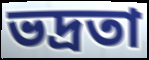
ভদ্রতা